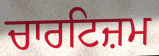
ਚਾਰਟਿਜ਼ਮ